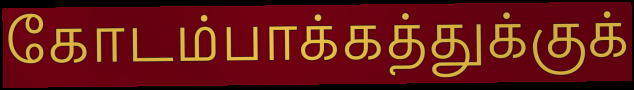
கோடம்பாக்கத்துக்குக்